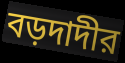
বড়দাদীর